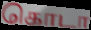
கொடா